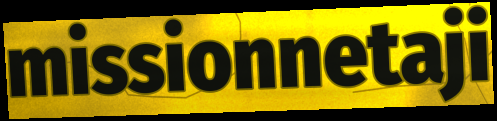
missionnetaji